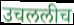
उचललीच